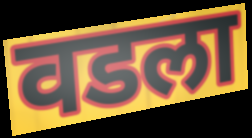
वडला